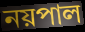
নয়পাল